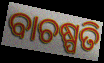
ବାଚଷ୍ପତି